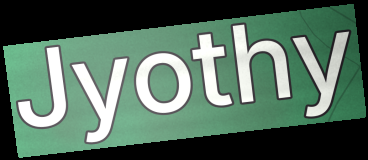
Jyothy